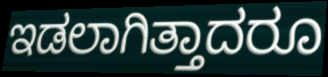
ಇಡಲಾಗಿತ್ತಾದರೂ